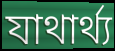
যাথার্থ্য